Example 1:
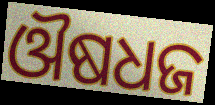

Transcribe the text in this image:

ଔଷଧଜ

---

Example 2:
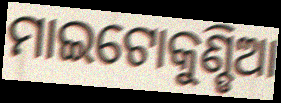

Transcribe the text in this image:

ମାଇଟୋକୁଣ୍ଡିଆ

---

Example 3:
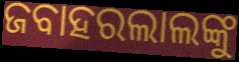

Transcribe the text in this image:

ଜବାହରଲାଲଙ୍କୁ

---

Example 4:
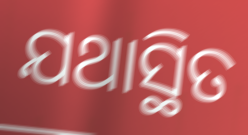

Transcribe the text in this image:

ଯଥାସ୍ଥିତ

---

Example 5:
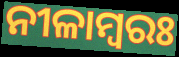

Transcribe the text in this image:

ନୀଳାମ୍ବରଃ